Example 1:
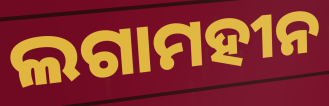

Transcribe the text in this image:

ଲଗାମହୀନ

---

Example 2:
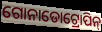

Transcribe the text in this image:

ଗୋନାଡୋଟ୍ରୋପିନ୍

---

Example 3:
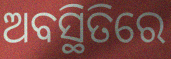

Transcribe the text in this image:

ଅବସ୍ଥିତିରେ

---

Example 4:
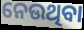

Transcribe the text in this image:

ନେଉଥିବା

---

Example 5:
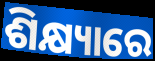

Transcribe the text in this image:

ଶିକ୍ଷ୍ୟାରେ